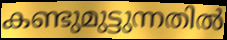
കണ്ടുമുട്ടുന്നതിൽ